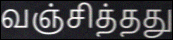
வஞ்சித்தது